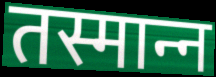
तस्मान्न